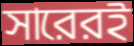
সারেরই